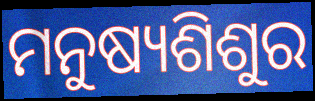
ମନୁଷ୍ୟଶିଶୁର